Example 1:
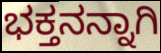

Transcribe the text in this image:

ಭಕ್ತನನ್ನಾಗಿ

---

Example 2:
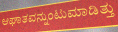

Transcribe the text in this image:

ಆಘಾತವನ್ನುಂಟುಮಾಡಿತ್ತು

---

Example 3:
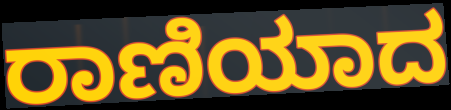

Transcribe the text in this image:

ರಾಣಿಯಾದ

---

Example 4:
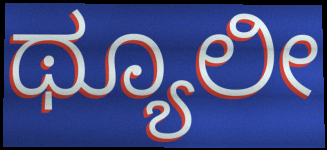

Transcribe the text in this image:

ಥ್ಯೂಲೀ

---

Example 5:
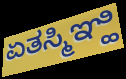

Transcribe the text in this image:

ಏತಸ್ಮಿಞ್ಹಿ